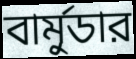
বার্মুডার